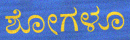
ಶೋಗಳೂ